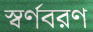
স্বর্ণবরণ